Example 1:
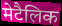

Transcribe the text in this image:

मेटैलिक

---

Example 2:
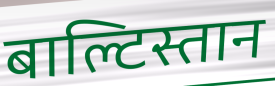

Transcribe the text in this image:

बाल्टिस्तान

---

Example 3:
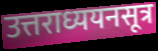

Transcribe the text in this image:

उत्तराध्ययनसूत्र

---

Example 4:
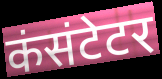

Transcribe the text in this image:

कंसंटेटर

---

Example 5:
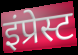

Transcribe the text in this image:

इंप्रेस्ट